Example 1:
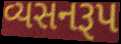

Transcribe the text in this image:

વ્યસનરૂપ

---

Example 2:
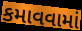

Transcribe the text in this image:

કમાવવામાં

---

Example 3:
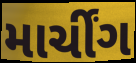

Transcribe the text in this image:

માર્ચીંગ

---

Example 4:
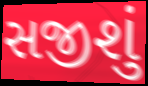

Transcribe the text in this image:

સજીશું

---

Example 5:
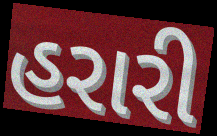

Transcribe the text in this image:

હરારી